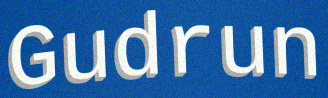
Gudrun